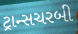
ટ્રાન્સચરબી